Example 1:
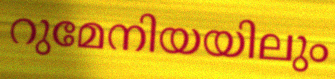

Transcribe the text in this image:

റുമേനിയയിലും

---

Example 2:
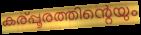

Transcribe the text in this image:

കര്പ്പൂരത്തിന്റെയും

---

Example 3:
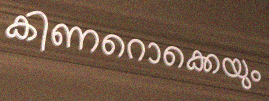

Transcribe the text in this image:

കിണറൊക്കെയും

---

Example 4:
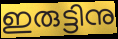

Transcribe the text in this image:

ഇരുട്ടിനു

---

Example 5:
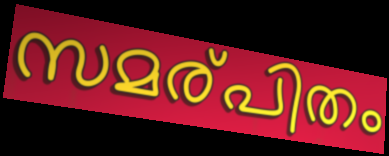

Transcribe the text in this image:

സമര്പിതം